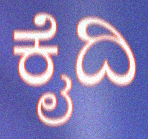
ಕೈದಿ